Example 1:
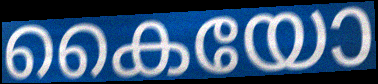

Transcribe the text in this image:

കൈയോ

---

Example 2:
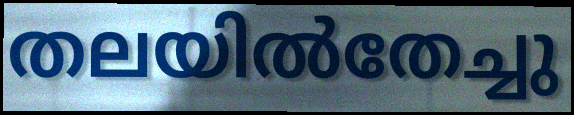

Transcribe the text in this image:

തലയിൽതേച്ചു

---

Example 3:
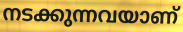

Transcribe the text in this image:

നടക്കുന്നവയാണ്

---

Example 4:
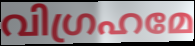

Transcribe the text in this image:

വിഗ്രഹമേ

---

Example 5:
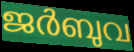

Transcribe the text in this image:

ജർബുവ